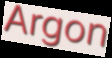
Argon